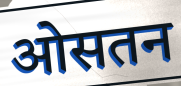
ओसतन